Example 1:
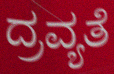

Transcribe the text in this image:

ದ್ರವ್ಯತೆ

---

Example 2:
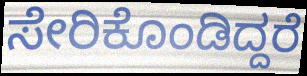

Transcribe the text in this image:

ಸೇರಿಕೊಂಡಿದ್ದರೆ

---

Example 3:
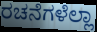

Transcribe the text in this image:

ರಚನೆಗಳೆಲ್ಲಾ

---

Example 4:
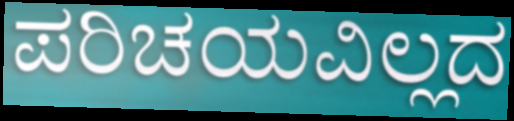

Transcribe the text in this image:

ಪರಿಚಯವಿಲ್ಲದ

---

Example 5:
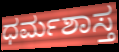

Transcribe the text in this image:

ಧರ್ಮಶಾಸ್ತ